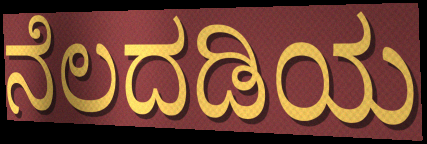
ನೆಲದಡಿಯ